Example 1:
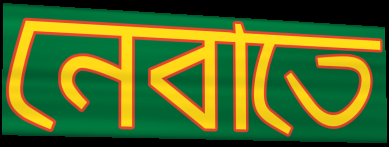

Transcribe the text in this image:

নেবাতে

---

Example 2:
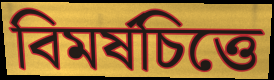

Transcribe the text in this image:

বিমর্ষচিত্তে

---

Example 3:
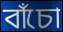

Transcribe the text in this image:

বাঁচো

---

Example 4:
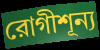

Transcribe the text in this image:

রোগীশূন্য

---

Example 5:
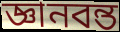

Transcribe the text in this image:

জ্ঞানবন্ত